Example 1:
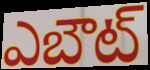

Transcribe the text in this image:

ఎబౌట్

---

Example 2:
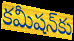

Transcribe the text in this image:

కమీషన్‌కు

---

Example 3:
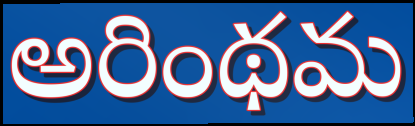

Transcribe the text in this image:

అరింథమ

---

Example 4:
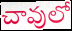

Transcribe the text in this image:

చావులో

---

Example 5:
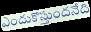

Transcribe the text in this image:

ఎందుకొస్తుందనేది